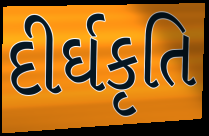
દીર્ઘકૃતિ